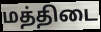
மத்திடை